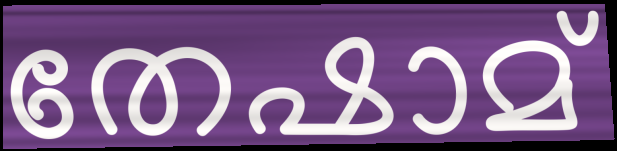
തേഷാമ്